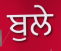
ਬੁਲੇ